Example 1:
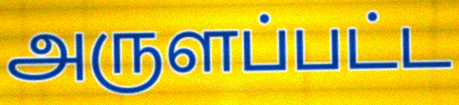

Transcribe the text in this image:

அருளப்பட்ட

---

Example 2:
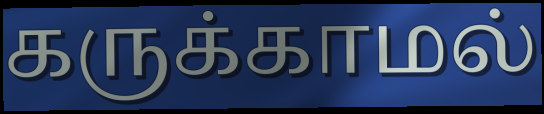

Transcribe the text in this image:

கருக்காமல்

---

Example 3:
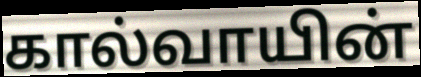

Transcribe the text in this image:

கால்வாயின்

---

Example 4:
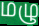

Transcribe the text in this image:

மழு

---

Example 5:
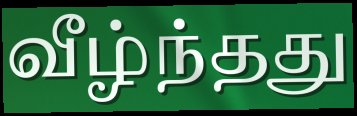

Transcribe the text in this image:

வீழ்ந்தது